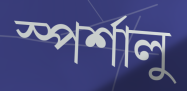
স্পর্শালু